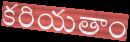
కరియతాం